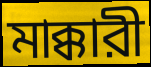
মাক্কারী